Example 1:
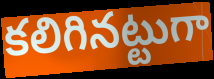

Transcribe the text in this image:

కలిగినట్టుగా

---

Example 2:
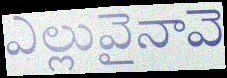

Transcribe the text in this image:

ఎల్లువైనావె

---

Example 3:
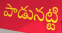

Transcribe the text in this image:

పాడునట్టి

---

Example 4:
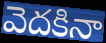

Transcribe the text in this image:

వెదకినా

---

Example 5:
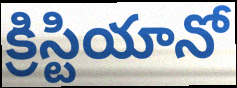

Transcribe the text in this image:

క్రిస్టియానో